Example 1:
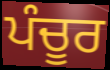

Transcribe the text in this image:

ਪੰਚੂਰ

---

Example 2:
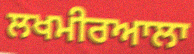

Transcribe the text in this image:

ਲਖਮੀਰਆਲਾ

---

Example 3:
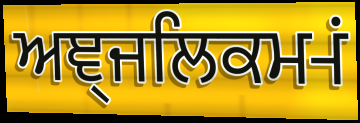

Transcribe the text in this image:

ਅਞ੍ਜਲਿਕਮ੍ਮਂ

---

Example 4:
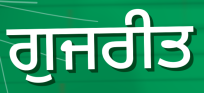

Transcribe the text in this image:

ਗੁਜਰੀਤ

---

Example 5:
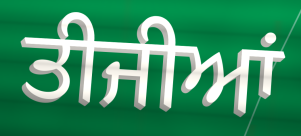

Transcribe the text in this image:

ਤੀਜੀਆਂ